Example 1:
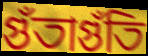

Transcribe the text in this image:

গুঁতাগুঁতি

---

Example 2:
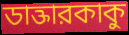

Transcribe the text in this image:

ডাক্তারকাকু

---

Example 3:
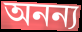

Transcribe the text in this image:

অনন্য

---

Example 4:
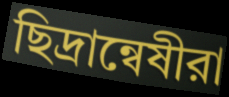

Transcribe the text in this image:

ছিদ্রান্বেষীরা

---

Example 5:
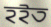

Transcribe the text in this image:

হইত